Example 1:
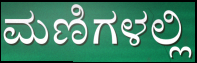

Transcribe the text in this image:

ಮಣಿಗಳಲ್ಲಿ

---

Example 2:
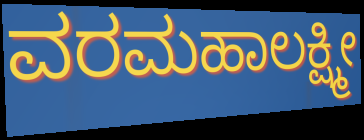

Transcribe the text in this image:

ವರಮಹಾಲಕ್ಷ್ಮೀ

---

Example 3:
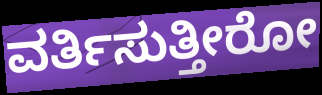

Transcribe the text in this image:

ವರ್ತಿಸುತ್ತೀರೋ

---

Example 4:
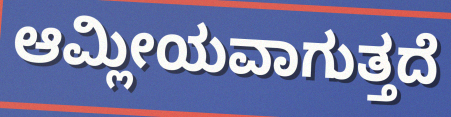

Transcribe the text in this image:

ಆಮ್ಲೀಯವಾಗುತ್ತದೆ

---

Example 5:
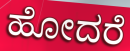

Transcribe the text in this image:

ಹೋದರೆ